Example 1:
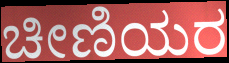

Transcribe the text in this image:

ಚೀಣಿಯರ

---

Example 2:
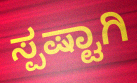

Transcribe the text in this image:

ಸ್ಪಷ್ಟಾಗಿ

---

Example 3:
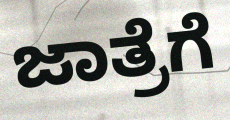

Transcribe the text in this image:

ಜಾತ್ರೆಗೆ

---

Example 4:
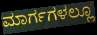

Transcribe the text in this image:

ಮಾರ್ಗಗಳಲ್ಲೂ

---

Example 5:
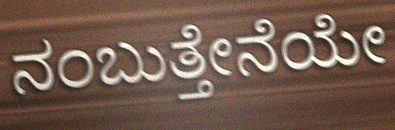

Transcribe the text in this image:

ನಂಬುತ್ತೇನೆಯೇ